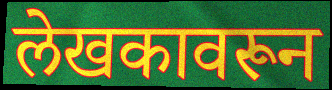
लेखकावरून